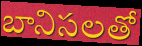
బానిసలతో